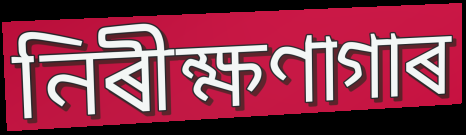
নিৰীক্ষণাগাৰ